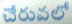
చేరువలో